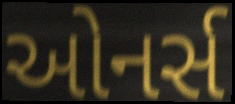
ઓનર્સ